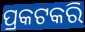
ପ୍ରକଟକରି